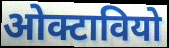
ओक्टावियो